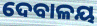
ଦେବାଳୟ